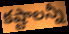
కష్టాలన్నీ